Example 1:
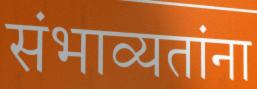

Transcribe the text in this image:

संभाव्यतांना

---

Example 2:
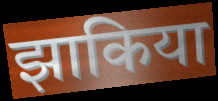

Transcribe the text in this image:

झाकिया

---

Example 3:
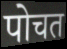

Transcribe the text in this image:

पोचत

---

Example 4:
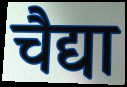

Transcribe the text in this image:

चैद्या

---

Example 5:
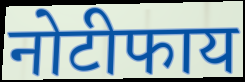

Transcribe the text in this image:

नोटीफाय